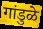
गांडुळे